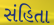
સંહિતા